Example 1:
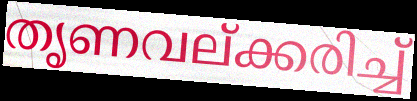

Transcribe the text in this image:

തൃണവല്ക്കരിച്ച്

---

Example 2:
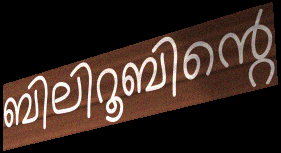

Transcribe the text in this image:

ബിലിറൂബിന്റെ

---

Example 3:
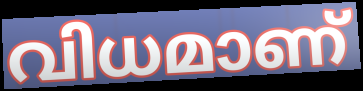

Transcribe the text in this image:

വിധമാണ്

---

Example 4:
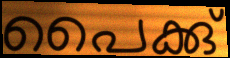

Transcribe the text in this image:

പൈക്കു്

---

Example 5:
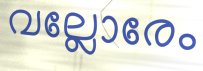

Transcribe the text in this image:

വല്ലോരേം